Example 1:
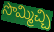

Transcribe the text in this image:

సొమ్మిచ్చి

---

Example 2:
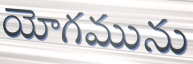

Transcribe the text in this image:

యోగమును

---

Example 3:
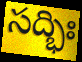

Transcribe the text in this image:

సద్భిః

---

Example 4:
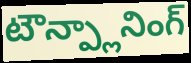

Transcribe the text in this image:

టౌన్ప్లానింగ్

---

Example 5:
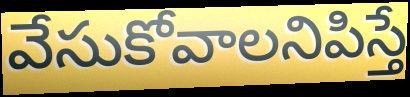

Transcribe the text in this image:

వేసుకోవాలనిపిస్తే